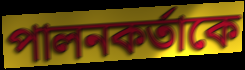
পালনকর্তাকে